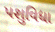
પશુવિદ્યા